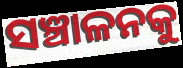
ସଞ୍ଚାଳନକୁ